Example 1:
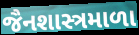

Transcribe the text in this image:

જૈનશાસ્ત્રમાળા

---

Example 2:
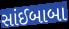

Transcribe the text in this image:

સાંઈબાબા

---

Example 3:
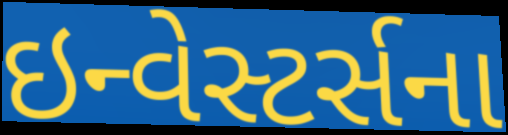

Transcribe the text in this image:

ઇન્વેસ્ટર્સના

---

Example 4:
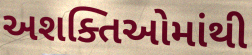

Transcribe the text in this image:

અશક્તિઓમાંથી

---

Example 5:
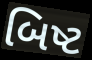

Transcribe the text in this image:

બિષ્ટ